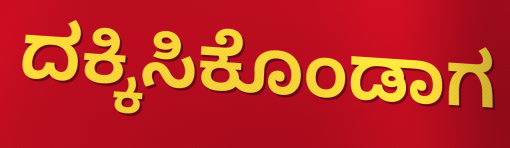
ದಕ್ಕಿಸಿಕೊಂಡಾಗ